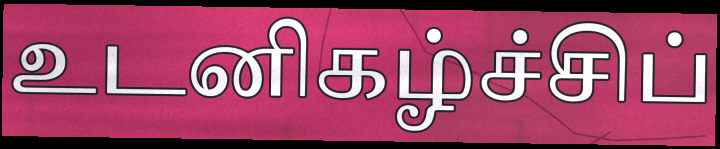
உடனிகழ்ச்சிப்